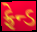
ફ્રેન્ડ